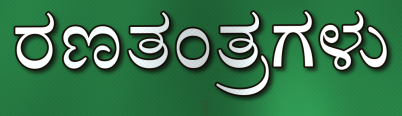
ರಣತಂತ್ರಗಳು